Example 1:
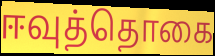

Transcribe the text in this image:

ஈவுத்தொகை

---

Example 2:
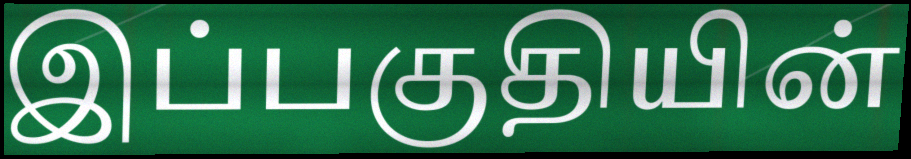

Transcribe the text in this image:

இப்பகுதியின்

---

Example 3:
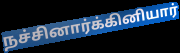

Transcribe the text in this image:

நச்சினார்க்கினியார்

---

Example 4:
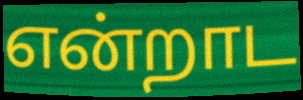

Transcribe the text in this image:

என்றாட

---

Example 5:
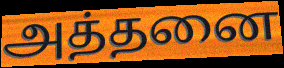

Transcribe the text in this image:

அத்தனை